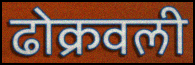
ढोक्रवली